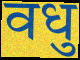
वधु